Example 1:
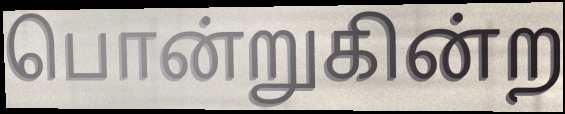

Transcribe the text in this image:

பொன்றுகின்ற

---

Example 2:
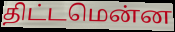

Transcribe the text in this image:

திட்டமென்ன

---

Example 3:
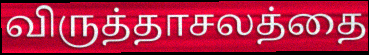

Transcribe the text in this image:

விருத்தாசலத்தை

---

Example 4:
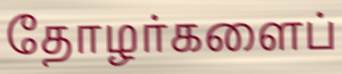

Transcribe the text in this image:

தோழர்களைப்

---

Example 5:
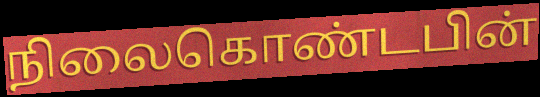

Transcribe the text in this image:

நிலைகொண்டபின்